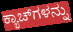
ಕ್ಯಾಚ್‌ಗಳನ್ನು